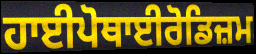
ਹਾਈਪੋਥਾਈਰੋਡਿਜ਼ਮ